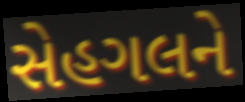
સેહગલને